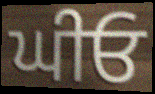
ਘੀਓ